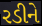
રડીને